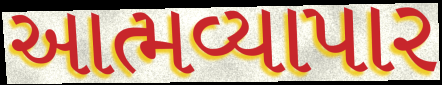
આત્મવ્યાપાર